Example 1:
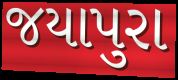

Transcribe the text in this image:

જયાપુરા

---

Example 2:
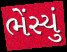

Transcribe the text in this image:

ભેંસ્યું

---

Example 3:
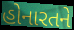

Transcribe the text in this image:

હોનારતને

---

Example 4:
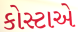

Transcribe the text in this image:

કોસ્ટાએ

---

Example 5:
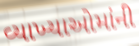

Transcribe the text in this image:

વ્યાખ્યાઓમાંની